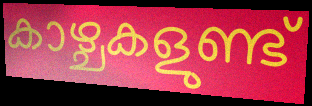
കാഴ്ചകളുണ്ട്